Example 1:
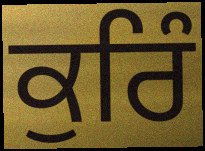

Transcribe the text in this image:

ਕੁਰਿੰ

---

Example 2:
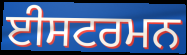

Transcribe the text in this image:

ਈਸਟਰਮਨ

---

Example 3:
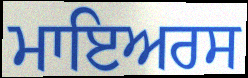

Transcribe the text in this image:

ਮਾਇਅਰਸ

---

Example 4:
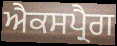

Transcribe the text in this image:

ਐਕਸਪ੍ਰੈਗ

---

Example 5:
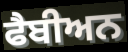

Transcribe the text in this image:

ਫੈਬੀਅਨ